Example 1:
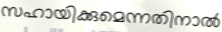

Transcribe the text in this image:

സഹായിക്കുമെന്നതിനാൽ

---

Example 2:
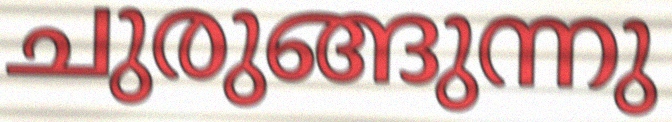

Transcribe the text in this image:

ചുരുങ്ങുന്നു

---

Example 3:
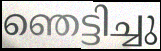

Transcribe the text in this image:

ഞെട്ടിച്ചു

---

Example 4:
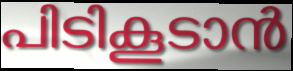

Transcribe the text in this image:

പിടികൂടാൻ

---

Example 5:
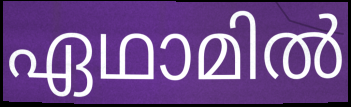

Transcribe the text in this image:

ഏഥാമിൽ